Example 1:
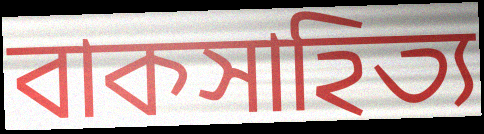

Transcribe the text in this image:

বাকসাহিত্য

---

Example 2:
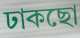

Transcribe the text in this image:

ঢাকছো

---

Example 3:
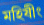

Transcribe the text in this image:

মহিষীং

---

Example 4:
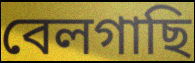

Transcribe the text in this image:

বেলগাছি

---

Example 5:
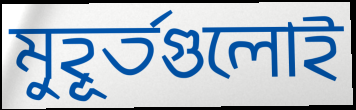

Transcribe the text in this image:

মুহূর্তগুলোই